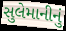
સુલેમાનીનું